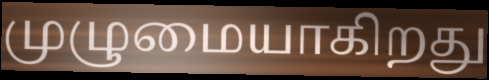
முழுமையாகிறது